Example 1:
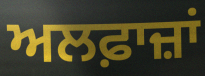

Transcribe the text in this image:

ਅਲਫ਼ਾਜ਼ਾਂ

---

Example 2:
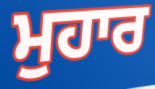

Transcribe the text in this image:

ਮੁਹਾਰ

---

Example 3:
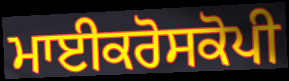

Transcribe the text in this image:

ਮਾਈਕਰੋਸਕੋਪੀ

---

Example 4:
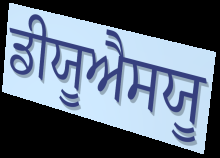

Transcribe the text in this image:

ਡੀਯੂਐਸਯੂ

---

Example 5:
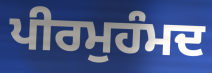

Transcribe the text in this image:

ਪੀਰਮੁਹੰਮਦ